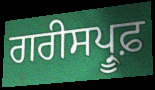
ਗਰੀਸਪ੍ਰੂਫ਼